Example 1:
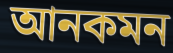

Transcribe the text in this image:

আনকমন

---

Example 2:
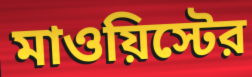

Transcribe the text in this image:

মাওয়িস্টের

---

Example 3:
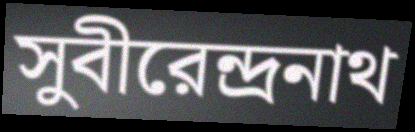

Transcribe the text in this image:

সুবীরেন্দ্রনাথ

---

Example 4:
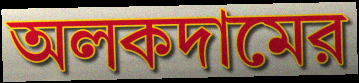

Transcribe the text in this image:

অলকদামের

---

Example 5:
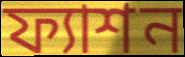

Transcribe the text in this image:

ফ্যাশন